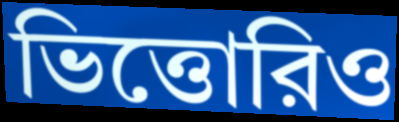
ভিত্তোরিও